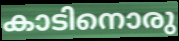
കാടിനൊരു